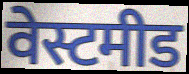
वेस्टमीड